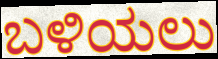
ಬಳಿಯಲು